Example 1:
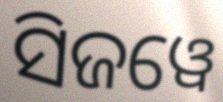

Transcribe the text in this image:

ସିଜୱେ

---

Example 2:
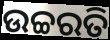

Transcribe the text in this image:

ଉଚ୍ଚରତି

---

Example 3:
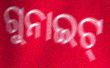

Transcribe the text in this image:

ଗୁନାଇଟ୍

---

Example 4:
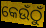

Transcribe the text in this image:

କେଉଁଠୁଁ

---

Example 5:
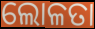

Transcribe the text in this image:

ଲୋଳତା